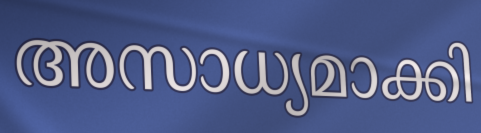
അസാധ്യമാക്കി